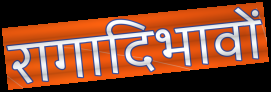
रागादिभावों